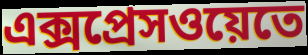
এক্সপ্রেসওয়েতে